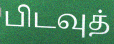
பிடவுத்